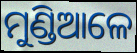
ମୁଣ୍ଡିଆଳେ